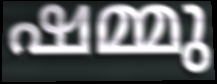
ഷമ്മു